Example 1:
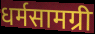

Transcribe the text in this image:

धर्मसामग्री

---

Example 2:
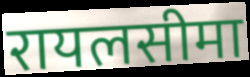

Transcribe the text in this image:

रायलसीमा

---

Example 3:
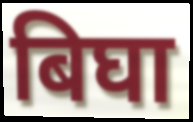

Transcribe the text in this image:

बिघा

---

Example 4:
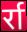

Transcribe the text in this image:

र्रा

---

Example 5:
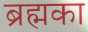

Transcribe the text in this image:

ब्रह्मका